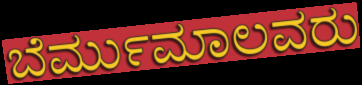
ಬೆರ್ಮುಮಾಲವರು